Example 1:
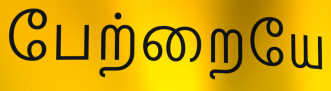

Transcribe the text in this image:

பேற்றையே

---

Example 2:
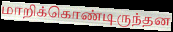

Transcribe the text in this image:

மாறிக்கொண்டிருந்தன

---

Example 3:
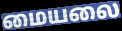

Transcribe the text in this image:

மையலை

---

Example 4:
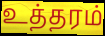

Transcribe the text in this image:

உத்தரம்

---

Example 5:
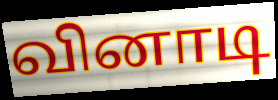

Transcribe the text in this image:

வினாடி